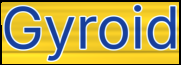
Gyroid